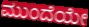
ಮುಂದೆಯೇ